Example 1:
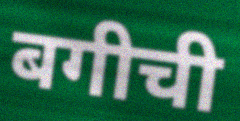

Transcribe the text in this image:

बगीची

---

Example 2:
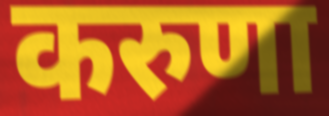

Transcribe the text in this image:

करुणा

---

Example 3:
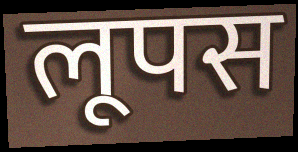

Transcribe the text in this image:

लूपस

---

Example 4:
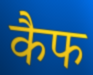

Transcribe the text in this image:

कैफ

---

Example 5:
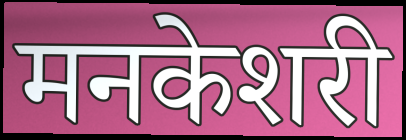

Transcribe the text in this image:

मनकेशरी